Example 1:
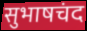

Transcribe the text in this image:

सुभाषचंद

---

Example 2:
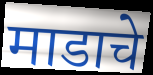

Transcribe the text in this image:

माडाचे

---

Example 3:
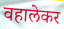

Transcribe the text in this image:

वहालेकर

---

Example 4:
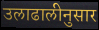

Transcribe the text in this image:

उलाढालीनुसार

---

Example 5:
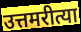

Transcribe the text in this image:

उत्तमरीत्या